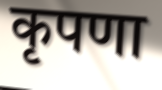
कृपणा